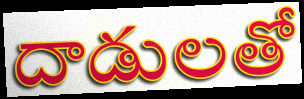
దాడులతో